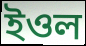
ইওল